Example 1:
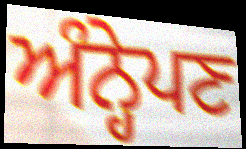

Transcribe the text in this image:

ਅੰਨ੍ਹੇਪਣ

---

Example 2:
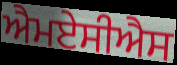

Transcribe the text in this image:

ਐਮਏਸੀਐਸ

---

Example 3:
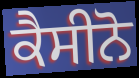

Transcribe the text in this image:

ਕੈਸੀਨੋ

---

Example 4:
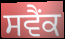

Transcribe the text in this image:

ਸਵੈਂਕ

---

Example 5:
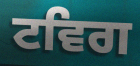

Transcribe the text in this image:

ਟਵਿਗ